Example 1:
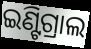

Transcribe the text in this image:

ଇଣ୍ଟିଗ୍ରାଲ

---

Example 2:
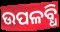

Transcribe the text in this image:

ଉପଳବ୍ଧି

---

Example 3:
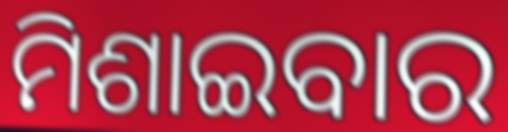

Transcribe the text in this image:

ମିଶାଇବାର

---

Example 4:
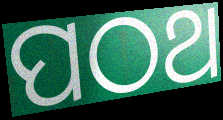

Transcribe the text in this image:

ପଠଥ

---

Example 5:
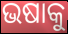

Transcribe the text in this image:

ଭଷାକୁ